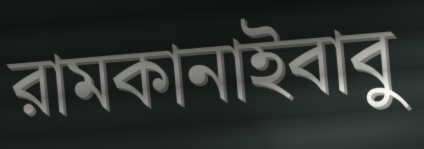
রামকানাইবাবু